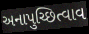
અનાપુચ્છિત્વાવ